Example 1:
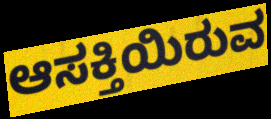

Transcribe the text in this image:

ಆಸಕ್ತಿಯಿರುವ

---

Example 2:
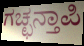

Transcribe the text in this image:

ಗಚ್ಛನ್ತಾಪಿ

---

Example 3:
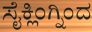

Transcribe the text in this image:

ಸೈಕ್ಲಿಂಗ್ನಿಂದ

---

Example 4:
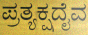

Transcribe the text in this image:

ಪ್ರತ್ಯಕ್ಷದೈವ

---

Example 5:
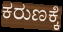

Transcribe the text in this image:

ಕರುಣಕ್ಕೆ